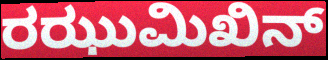
ರಝುಮಿಖಿನ್